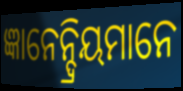
ଜ୍ଞାନେନ୍ଦ୍ରିୟମାନେ